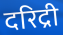
दरिद्री